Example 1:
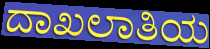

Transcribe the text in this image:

ದಾಖಲಾತಿಯ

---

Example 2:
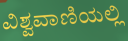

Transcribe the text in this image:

ವಿಶ್ವವಾಣಿಯಲ್ಲಿ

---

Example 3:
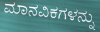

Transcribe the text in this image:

ಮಾನವಿಕಗಳನ್ನು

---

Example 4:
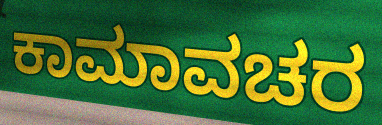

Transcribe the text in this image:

ಕಾಮಾವಚರ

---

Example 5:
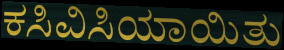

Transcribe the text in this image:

ಕಸಿವಿಸಿಯಾಯಿತು